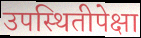
उपस्थितीपेक्षा